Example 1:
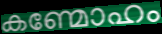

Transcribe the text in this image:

കണ്മോഹം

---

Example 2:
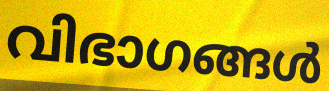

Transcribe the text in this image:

വിഭാഗങ്ങൾ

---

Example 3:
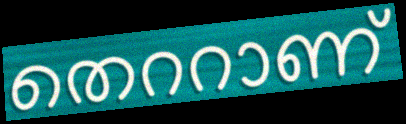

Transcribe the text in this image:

തെററാണ്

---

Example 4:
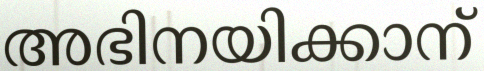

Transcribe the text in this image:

അഭിനയിക്കാന്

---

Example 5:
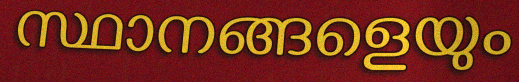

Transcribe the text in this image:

സ്ഥാനങ്ങളെയും